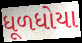
ધૂળધોયા